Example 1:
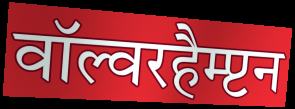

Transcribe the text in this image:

वॉल्वरहैम्प्टन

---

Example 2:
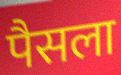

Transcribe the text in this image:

पैसला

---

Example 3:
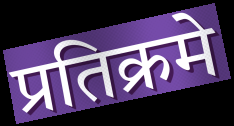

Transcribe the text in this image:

प्रतिक्रमे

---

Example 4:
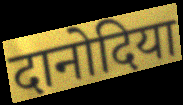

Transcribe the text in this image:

दानोदिया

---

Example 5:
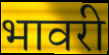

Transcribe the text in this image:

भावरी